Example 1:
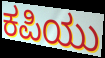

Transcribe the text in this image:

ಕಪಿಯು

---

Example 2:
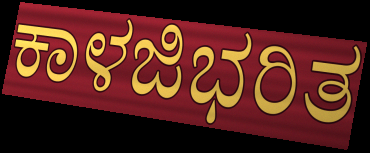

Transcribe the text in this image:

ಕಾಳಜಿಭರಿತ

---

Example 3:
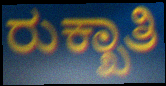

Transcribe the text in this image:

ರುಕ್ಖಾತಿ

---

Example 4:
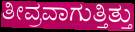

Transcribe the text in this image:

ತೀವ್ರವಾಗುತ್ತಿತ್ತು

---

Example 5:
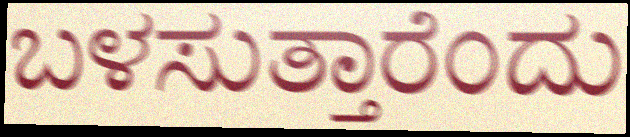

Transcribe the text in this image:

ಬಳಸುತ್ತಾರೆಂದು